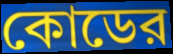
কোডের